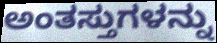
ಅಂತಸ್ತುಗಳನ್ನು